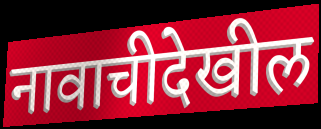
नावाचीदेखील